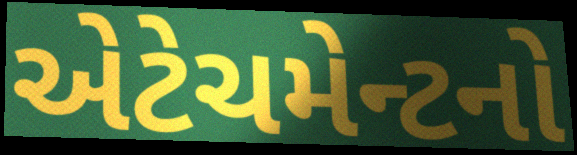
એટેચમેન્ટનો